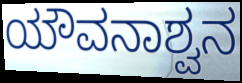
ಯೌವನಾಶ್ವನ